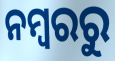
ନମ୍ବରରୁ